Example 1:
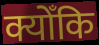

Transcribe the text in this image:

क्योँकि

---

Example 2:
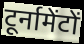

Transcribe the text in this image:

टूर्नामेंटों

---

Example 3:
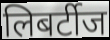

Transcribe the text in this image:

लिबर्टीज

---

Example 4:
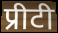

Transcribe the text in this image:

प्रीटी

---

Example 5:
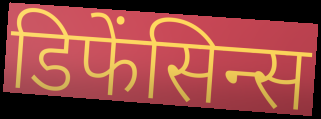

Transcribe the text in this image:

डिफेंसिन्स